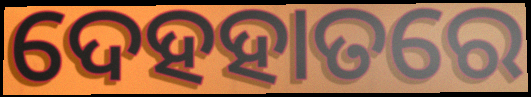
ଦେହହାତରେ